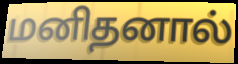
மனிதனால்